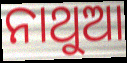
ନାଥୁଆ